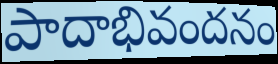
పాదాభివందనం